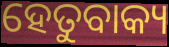
ହେତୁବାକ୍ୟ